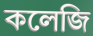
কলেজি